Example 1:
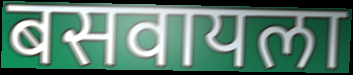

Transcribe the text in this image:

बसवायला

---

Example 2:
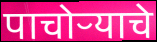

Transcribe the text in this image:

पाचोऱ्याचे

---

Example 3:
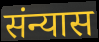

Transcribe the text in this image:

संन्यास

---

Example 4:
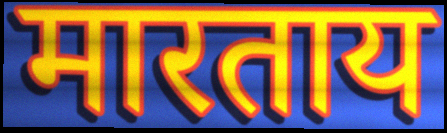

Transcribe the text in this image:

मारताय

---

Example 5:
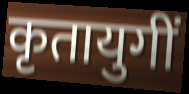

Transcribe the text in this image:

कृतायुगीं